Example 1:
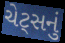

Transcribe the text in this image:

ચેટ્સનું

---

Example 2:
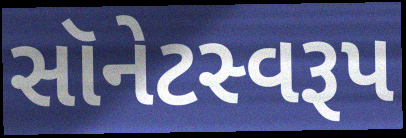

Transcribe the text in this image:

સૉનેટસ્વરૂપ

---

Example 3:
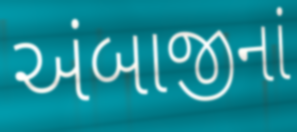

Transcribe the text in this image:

અંબાજીનાં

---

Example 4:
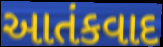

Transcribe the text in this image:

આતંકવાદ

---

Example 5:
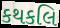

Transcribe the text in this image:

કથકલિ